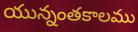
యున్నంతకాలము